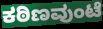
ಕಠಿಣವುಂಟೆ